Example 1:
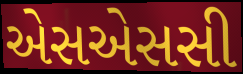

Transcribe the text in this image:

એસએસસી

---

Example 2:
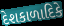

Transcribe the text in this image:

દેશકાળાદિકે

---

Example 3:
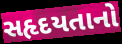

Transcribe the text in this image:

સહૃદયતાનો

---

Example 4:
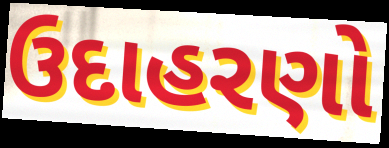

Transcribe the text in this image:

ઉદાહરણો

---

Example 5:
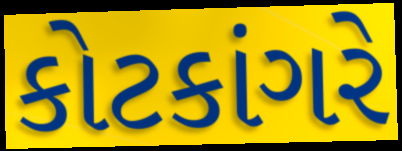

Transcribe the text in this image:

કોટકાંગરે